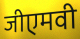
जीएमवी